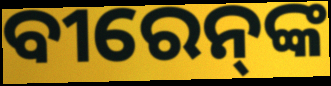
ବୀରେନ୍‍ଙ୍କ